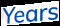
Years